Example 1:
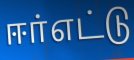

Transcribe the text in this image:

ஈர்எட்டு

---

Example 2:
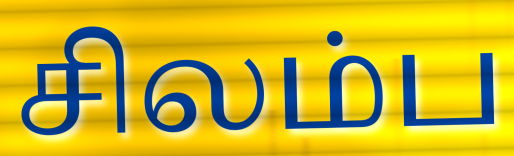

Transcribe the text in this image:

சிலம்ப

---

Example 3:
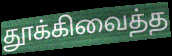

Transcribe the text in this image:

தூக்கிவைத்த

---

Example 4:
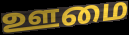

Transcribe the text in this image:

ஊமை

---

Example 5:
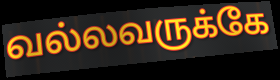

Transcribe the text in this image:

வல்லவருக்கே